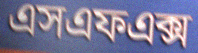
এসএফএক্স